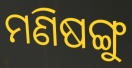
ମଣିଷଙ୍ଗୁ